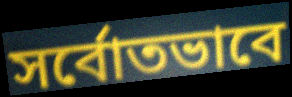
সর্বোতভাবে